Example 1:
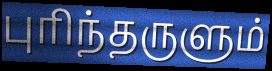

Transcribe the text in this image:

புரிந்தருளும்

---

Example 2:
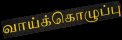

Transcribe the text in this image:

வாய்க்கொழுப்பு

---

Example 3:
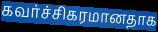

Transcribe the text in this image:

கவர்ச்சிகரமானதாக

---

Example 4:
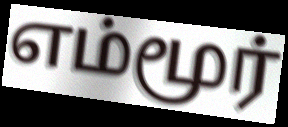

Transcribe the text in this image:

எம்மூர்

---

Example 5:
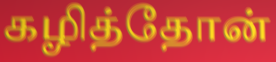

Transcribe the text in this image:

கழித்தோன்